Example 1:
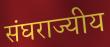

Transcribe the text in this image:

संघराज्यीय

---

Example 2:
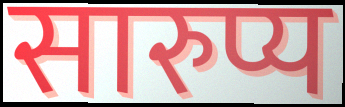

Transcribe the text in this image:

सारुप्य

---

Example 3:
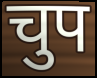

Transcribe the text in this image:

चुप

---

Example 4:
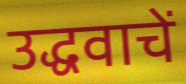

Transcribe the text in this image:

उद्धवाचें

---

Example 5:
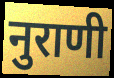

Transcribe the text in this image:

नुराणी